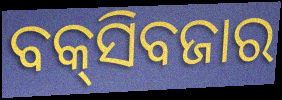
ବକ୍‌ସିବଜାର